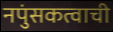
नपुंसकत्वाची